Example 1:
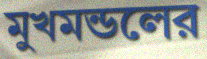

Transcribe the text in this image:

মুখমন্ডলের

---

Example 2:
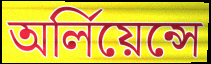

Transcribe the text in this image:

অর্লিয়েন্সে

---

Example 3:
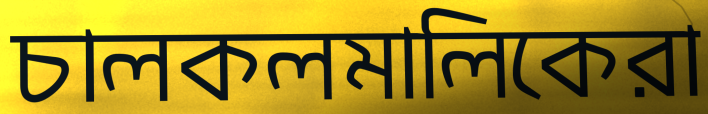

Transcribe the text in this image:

চালকলমালিকেরা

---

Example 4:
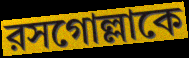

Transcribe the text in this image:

রসগোল্লাকে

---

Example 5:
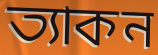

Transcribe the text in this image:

ত্যাকন